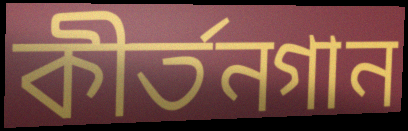
কীর্তনগান